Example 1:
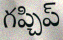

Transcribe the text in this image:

గప్చిప్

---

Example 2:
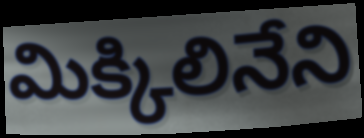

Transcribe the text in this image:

మిక్కిలినేని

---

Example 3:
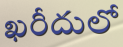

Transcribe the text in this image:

ఖరీదులో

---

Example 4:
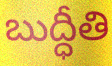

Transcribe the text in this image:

బుద్ధీతి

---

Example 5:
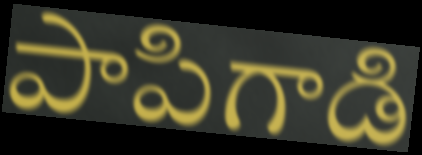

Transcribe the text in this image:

పాపిగాడి